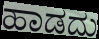
ಹಾಡದು